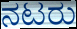
ನಟರು